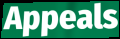
Appeals